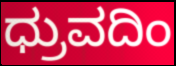
ಧ್ರುವದಿಂ